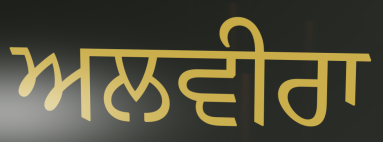
ਅਲਵੀਰਾ